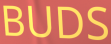
BUDS